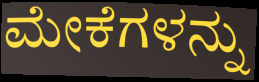
ಮೇಕೆಗಳನ್ನು